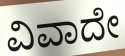
ವಿವಾದೇ